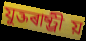
যুক্তৰাষ্ট্ৰীয়